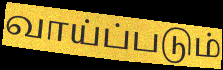
வாய்ப்படும்